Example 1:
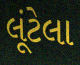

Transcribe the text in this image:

લૂંટેલા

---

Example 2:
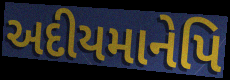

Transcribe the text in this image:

અદીયમાનેપિ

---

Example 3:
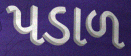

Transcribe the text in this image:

પડાળ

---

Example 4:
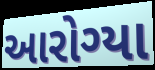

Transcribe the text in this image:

આરોગ્યા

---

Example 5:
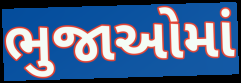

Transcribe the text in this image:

ભુજાઓમાં